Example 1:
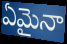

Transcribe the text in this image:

ఏమైనా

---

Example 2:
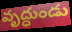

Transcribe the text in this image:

వృద్ధుండు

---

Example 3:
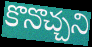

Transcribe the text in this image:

కొనొచ్చని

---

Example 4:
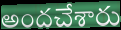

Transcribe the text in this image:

అందచేశారు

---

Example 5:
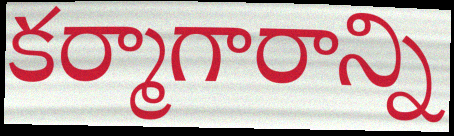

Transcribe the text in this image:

కర్మాగారాన్ని